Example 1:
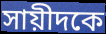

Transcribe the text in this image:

সায়ীদকে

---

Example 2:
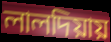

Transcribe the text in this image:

লালদিয়ায়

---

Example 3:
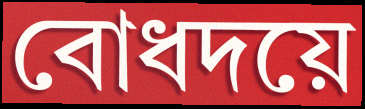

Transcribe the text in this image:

বোধদয়ে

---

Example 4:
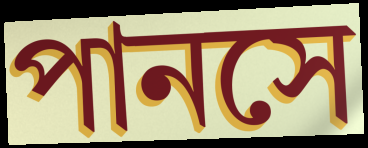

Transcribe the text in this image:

পানসে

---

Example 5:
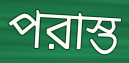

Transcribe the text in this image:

পরাস্ত